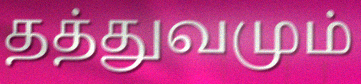
தத்துவமும்